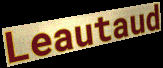
Leautaud